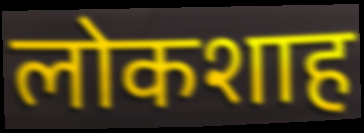
लोकशाह